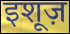
इशूज़